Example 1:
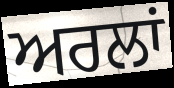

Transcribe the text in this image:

ਅਰਲਾਂ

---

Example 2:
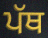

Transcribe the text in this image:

ਪੱਥ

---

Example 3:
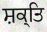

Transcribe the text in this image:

ਸ਼ਕ੍ਤਿ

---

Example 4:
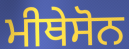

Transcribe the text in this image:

ਮੀਥੇਸੋਨ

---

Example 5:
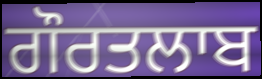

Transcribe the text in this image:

ਗੌਰਤਲਾਬ